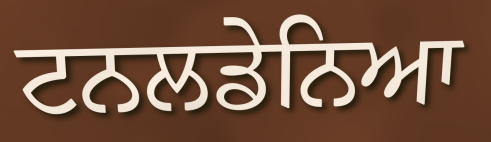
ਟਨਲਡੇਨਿਆ